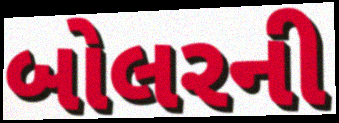
બોલરની